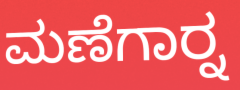
ಮಣೆಗಾರ್‍ನ